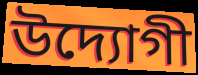
উদ্যোগী